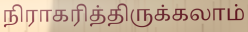
நிராகரித்திருக்கலாம்